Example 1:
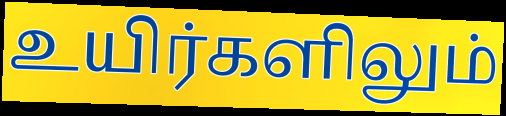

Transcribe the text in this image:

உயிர்களிலும்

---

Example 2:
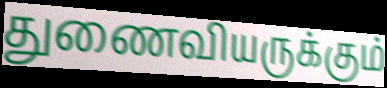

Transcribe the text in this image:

துணைவியருக்கும்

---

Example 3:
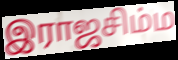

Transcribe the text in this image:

இராஜசிம்ம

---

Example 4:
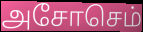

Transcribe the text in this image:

அசோசெம்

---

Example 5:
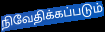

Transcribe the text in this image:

நிவேதிக்கப்படும்